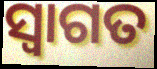
ସ୍ୱାଗତ